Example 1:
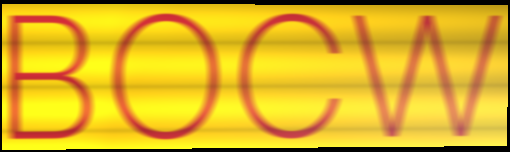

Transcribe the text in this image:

BOCW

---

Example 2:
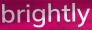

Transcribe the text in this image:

brightly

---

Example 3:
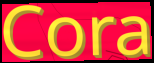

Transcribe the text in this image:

Cora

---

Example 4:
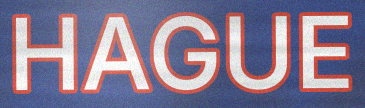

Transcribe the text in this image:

HAGUE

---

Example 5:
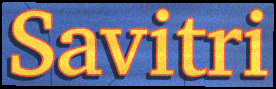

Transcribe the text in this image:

Savitri